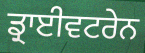
ਡ੍ਰਾਈਵਟਰੇਨ